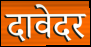
दावेदर